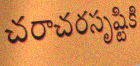
చరాచరసృష్టికి